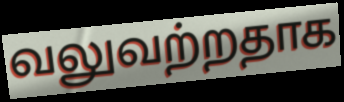
வலுவற்றதாக